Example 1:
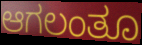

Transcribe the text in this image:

ಆಗಲಂತೂ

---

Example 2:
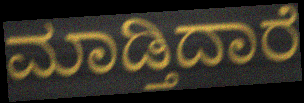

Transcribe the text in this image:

ಮಾಡ್ತಿದಾರೆ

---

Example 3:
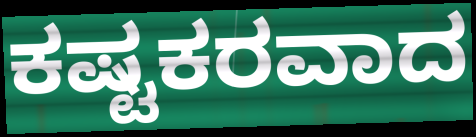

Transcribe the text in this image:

ಕಷ್ಟಕರವಾದ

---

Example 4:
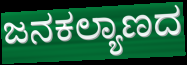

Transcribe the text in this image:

ಜನಕಲ್ಯಾಣದ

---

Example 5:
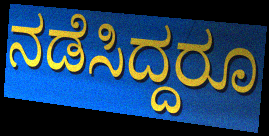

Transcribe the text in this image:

ನಡೆಸಿದ್ದರೂ